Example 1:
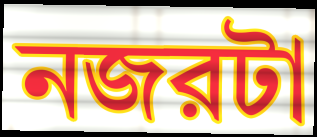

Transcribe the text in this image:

নজরটা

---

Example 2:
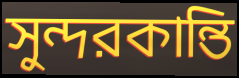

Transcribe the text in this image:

সুন্দরকান্তি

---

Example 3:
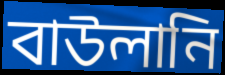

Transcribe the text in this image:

বাউলানি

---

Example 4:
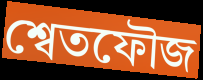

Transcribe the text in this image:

শ্বেতফৌজ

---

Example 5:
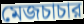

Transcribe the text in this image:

মেজচাচার